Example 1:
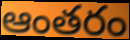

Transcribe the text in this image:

ఆంతరం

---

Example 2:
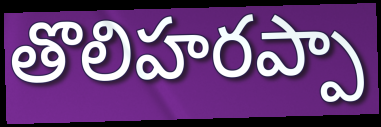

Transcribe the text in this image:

తొలిహరప్పా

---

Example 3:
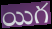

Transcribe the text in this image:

యిగ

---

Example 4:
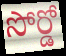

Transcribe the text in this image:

సోర్డో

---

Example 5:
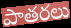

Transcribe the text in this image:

పాతరలు